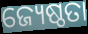
ଜ୍ୟେଷ୍ଠତା